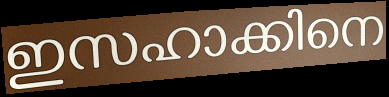
ഇസഹാക്കിനെ